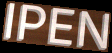
IPEN